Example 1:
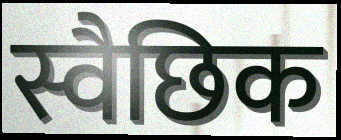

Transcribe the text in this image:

स्वैछिक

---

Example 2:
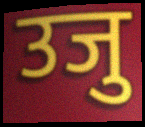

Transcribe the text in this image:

उजु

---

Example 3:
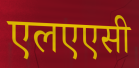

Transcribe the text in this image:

एलएएसी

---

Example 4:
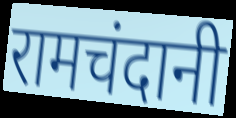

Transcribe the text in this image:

रामचंदानी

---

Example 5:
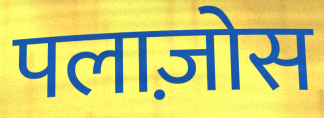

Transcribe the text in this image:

पलाज़ोस